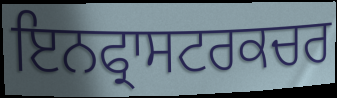
ਇਨਫ੍ਰਾਸਟਰਕਚਰ